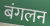
बंगलन